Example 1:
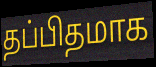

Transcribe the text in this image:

தப்பிதமாக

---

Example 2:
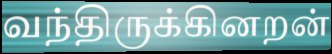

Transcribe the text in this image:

வந்திருக்கினறன்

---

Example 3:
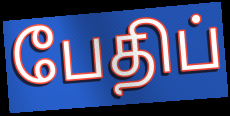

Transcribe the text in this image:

பேதிப்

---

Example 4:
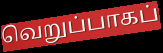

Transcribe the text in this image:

வெறுப்பாகப்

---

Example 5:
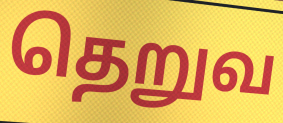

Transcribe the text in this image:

தெறுவ